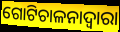
ଗୋଟିଚାଳନାଦ୍ୱାରା